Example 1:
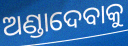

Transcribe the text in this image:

ଅଣ୍ଡାଦେବାକୁ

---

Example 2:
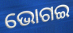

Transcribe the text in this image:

ଭୋଗଇ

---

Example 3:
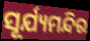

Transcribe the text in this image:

ସୂର୍ଯ୍ୟମନ୍ଦିର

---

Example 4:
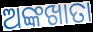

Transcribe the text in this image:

ଅଙ୍କଖାତା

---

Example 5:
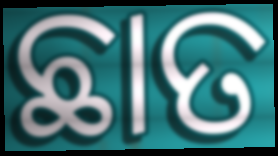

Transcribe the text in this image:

ଛାତ